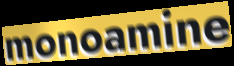
monoamine